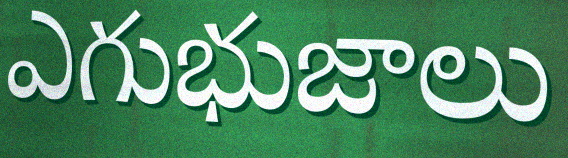
ఎగుభుజాలు